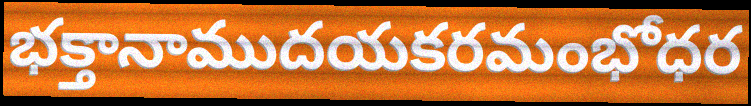
భక్తానాముదయకరమంభోధర